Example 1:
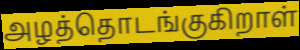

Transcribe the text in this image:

அழத்தொடங்குகிறாள்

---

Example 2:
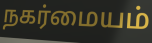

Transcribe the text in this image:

நகர்மையம்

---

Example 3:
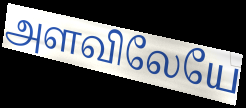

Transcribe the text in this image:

அளவிலேயே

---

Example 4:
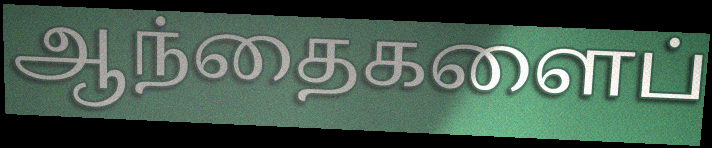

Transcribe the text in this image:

ஆந்தைகளைப்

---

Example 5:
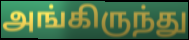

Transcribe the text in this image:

அங்கிருந்து